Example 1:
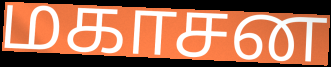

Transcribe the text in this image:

மகாசன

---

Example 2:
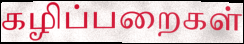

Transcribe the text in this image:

கழிப்பறைகள்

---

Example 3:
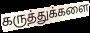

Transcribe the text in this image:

கருத்துக்களை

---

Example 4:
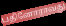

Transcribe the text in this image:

பதினோராவது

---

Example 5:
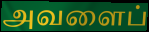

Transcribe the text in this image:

அவளைப்